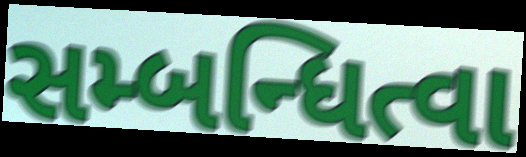
સમ્બન્ધિત્વા